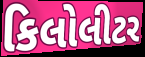
કિલોલીટર